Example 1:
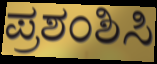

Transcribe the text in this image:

ಪ್ರಶಂಶಿಸಿ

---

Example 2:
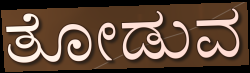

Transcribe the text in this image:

ತೋಡುವ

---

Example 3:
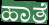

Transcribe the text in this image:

ಹಾತೆ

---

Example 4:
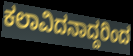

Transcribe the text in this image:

ಕಲಾವಿದನಾದ್ದರಿಂದ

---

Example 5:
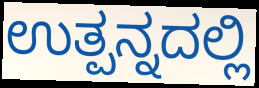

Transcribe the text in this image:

ಉತ್ಪನ್ನದಲ್ಲಿ